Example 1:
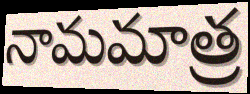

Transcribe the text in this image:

నామమాత్ర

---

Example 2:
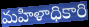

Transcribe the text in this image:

మహిళాధికారి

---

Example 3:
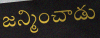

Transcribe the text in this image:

జన్మించాడు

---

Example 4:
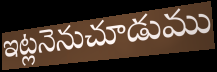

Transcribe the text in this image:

ఇట్లనెనుచూడుము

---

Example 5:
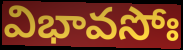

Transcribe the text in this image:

విభావసోః